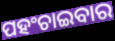
ପହଂଚାଇବାର